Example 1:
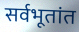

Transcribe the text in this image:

सर्वभूतांत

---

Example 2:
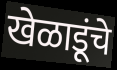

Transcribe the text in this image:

खेळाडूंचे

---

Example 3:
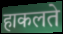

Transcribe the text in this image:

हाकलते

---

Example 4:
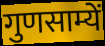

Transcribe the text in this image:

गुणसाम्यें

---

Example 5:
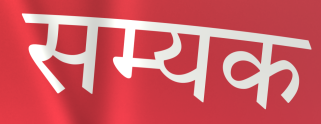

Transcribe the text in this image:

सम्‍यक